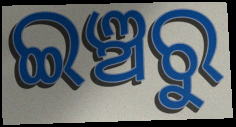
ଇଞ୍ଚରୁ